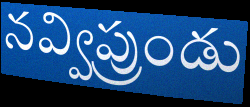
నవ్విప్రుండు